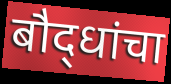
बौद्धांचा